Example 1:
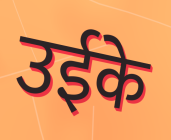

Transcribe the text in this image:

उईके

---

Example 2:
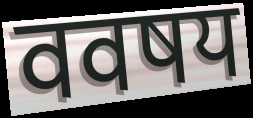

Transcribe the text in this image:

ववषय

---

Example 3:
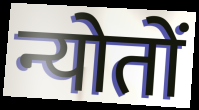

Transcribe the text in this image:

न्योतों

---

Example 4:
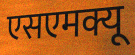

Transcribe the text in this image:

एसएमक्यू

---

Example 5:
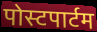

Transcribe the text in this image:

पोस्टपार्टम